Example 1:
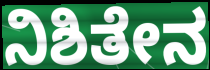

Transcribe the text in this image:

ನಿಶಿತೇನ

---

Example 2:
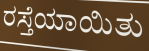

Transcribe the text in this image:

ರಸ್ತೆಯಾಯಿತು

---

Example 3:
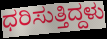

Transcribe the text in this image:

ಧರಿಸುತ್ತಿದ್ದಳು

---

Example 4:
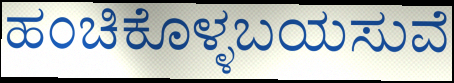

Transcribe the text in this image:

ಹಂಚಿಕೊಳ್ಳಬಯಸುವೆ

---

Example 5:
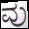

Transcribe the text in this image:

ವು